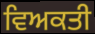
ਵਿਅਕਤੀ